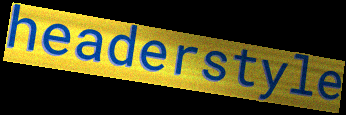
headerstyle